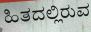
ಹಿತದಲ್ಲಿರುವ